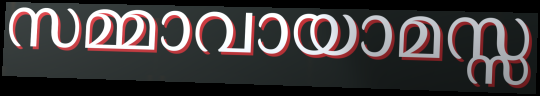
സമ്മാവായാമസ്സ